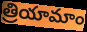
త్రియామాం